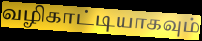
வழிகாட்டியாகவும்